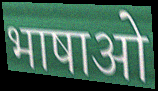
भाषाओ